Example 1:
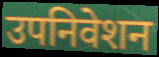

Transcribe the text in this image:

उपनिवेशन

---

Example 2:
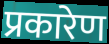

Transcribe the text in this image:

प्रकारेण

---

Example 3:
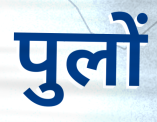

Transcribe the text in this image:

पुलों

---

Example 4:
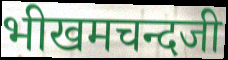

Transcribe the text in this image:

भीखमचन्दजी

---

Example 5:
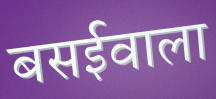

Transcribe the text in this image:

बसईवाला